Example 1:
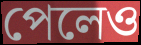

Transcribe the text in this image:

পেলেও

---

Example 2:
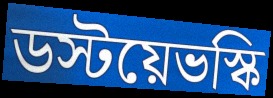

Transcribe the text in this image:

ডস্টয়েভস্কি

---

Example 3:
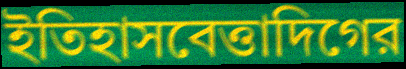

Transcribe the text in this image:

ইতিহাসবেত্তাদিগের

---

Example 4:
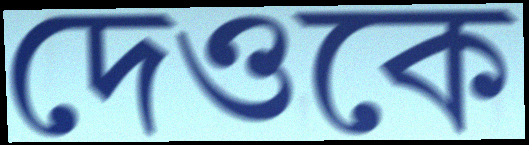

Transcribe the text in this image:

দেওকে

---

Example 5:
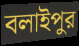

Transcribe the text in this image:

বলাইপুর